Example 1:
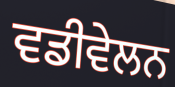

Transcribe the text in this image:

ਵਡੀਵੇਲਨ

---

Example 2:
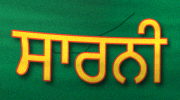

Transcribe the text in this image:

ਸਾਰਨੀ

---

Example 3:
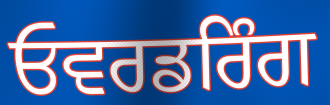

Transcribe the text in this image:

ਓਵਰਡਰਿੰਗ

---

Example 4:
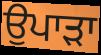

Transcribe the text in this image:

ਉਪਾੜਾ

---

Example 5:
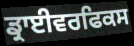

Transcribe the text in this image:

ਡ੍ਰਾਈਵਰਫਿਕਸ